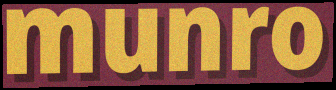
munro